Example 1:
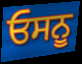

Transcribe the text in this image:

ਓਸਨੂ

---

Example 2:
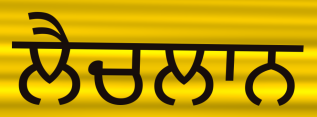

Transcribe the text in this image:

ਲੈਚਲਾਨ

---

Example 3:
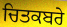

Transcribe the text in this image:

ਚਿਤਕਬਰੇ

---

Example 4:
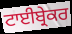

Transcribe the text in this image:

ਟਾਈਬ੍ਰੇਕਰ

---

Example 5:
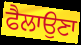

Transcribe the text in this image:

ਫੈਲਾਉਣਾ